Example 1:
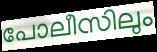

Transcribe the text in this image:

പോലീസിലും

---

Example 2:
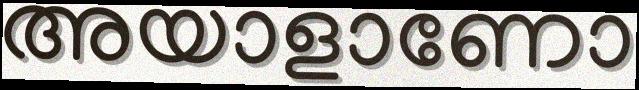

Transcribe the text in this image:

അയാളാണോ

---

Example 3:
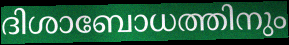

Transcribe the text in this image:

ദിശാബോധത്തിനും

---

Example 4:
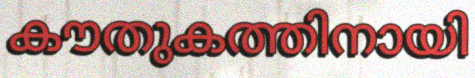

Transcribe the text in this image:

കൗതുകത്തിനായി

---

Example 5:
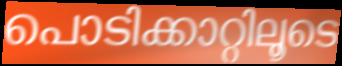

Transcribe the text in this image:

പൊടിക്കാറ്റിലൂടെ